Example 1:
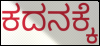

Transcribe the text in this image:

ಕದನಕ್ಕೆ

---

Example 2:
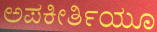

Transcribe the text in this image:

ಅಪಕೀರ್ತಿಯೂ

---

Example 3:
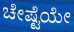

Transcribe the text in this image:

ಚೇಷ್ಟೆಯೇ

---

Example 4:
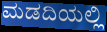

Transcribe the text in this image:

ಮಡದಿಯಲ್ಲಿ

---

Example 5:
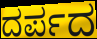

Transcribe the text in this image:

ದರ್ಪದ